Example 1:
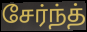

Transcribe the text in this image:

சேர்ந்த்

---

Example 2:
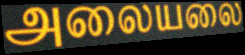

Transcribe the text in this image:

அலையலை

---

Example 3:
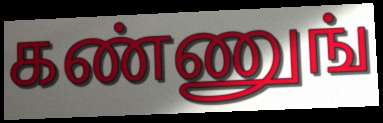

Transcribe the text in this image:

கண்ணுங்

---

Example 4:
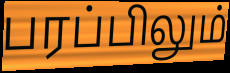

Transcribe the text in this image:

பரப்பிலும்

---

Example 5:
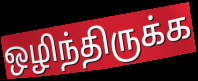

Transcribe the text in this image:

ஒழிந்திருக்க